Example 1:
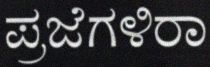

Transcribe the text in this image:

ಪ್ರಜೆಗಳಿರಾ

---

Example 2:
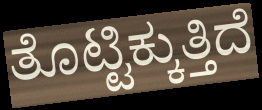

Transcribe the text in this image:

ತೊಟ್ಟಿಕ್ಕುತ್ತಿದೆ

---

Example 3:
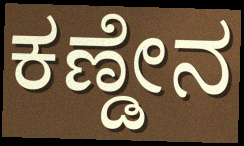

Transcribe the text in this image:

ಕಣ್ಡೇನ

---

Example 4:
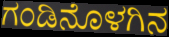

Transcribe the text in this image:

ಗಂಡಿನೊಳಗಿನ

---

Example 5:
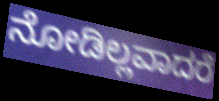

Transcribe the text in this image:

ನೋಡಿಲ್ಲವಾದರೆ